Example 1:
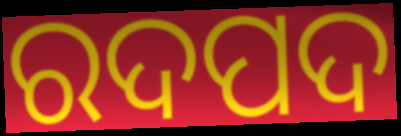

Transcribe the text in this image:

ରଦପଦ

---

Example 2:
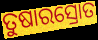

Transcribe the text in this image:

ତୁଷାରସ୍ରୋତ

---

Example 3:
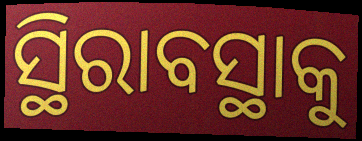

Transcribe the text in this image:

ସ୍ଥିରାବସ୍ଥାକୁ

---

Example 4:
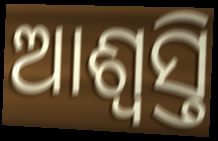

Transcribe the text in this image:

ଆଶ୍ଵସ୍ତି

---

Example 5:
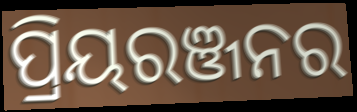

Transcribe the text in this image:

ପ୍ରିୟରଞ୍ଜନର